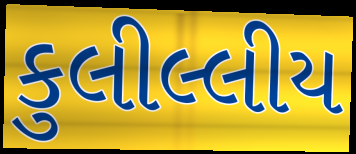
કુલીલ્લીય